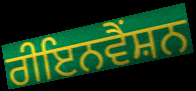
ਰੀਇਨਵੈਂਸ਼ਨ